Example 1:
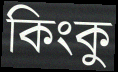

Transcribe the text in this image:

কিংকু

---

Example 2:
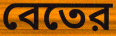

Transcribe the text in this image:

বেতের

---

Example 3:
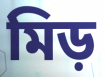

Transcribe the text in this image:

মিড়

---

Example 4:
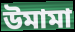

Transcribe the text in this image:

উমামা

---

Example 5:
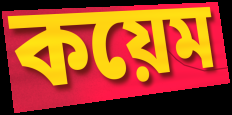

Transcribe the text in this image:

কয়েম